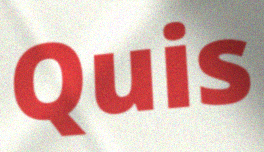
Quis